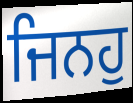
ਜਿਨਹੁ